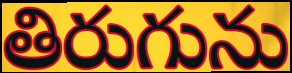
తిరుగును